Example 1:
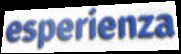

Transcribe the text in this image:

esperienza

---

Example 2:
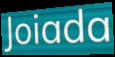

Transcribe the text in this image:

Joiada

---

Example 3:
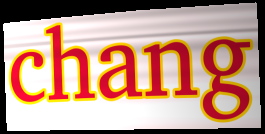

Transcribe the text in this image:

chang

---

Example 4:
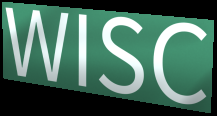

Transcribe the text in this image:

WISC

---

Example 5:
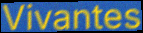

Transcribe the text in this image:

Vivantes